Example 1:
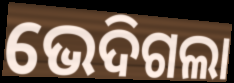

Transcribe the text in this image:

ଭେଦିଗଲା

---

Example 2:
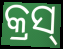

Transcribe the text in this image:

କ୍ରସ୍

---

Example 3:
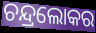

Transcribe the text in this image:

ଚନ୍ଦ୍ରଲୋକର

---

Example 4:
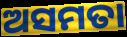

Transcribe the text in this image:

ଅସମତା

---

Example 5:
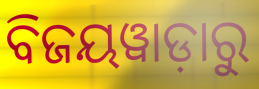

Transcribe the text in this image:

ବିଜୟୱାଡ଼ାରୁ